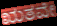
ಋತವೇ